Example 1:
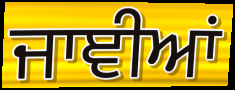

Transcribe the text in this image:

ਜਾਞੀਆਂ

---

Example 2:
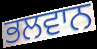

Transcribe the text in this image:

ਭਲਵਾਨ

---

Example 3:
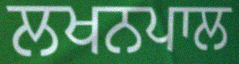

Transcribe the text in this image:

ਲਖਨਪਾਲ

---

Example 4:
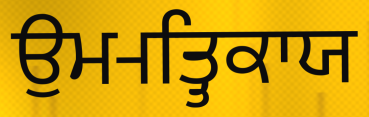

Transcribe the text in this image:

ਉਮ੍ਮਤ੍ਤਿਕਾਯ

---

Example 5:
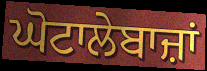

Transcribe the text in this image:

ਘੋਟਾਲੇਬਾਜ਼ਾਂ